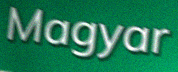
Magyar